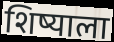
शिष्याला